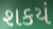
શકયં